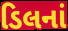
ડિલનાં